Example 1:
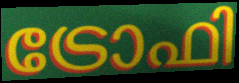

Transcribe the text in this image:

ട്രോഫി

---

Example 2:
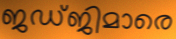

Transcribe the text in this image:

ജഡ്ജിമാരെ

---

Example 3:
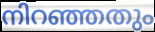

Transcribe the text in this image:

നിറഞ്ഞതും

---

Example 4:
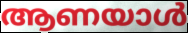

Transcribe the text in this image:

ആണയാൾ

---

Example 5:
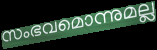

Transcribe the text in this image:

സംഭവമൊന്നുമല്ല